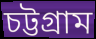
চট্টগ্ৰাম